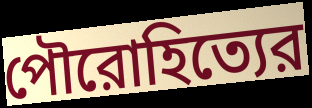
পৌরোহিত্যের